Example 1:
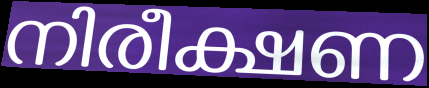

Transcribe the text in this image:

നിരീക്ഷണ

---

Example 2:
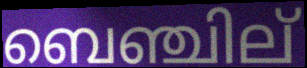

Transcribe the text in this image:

ബെഞ്ചില്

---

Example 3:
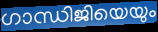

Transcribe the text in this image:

ഗാന്ധിജിയെയും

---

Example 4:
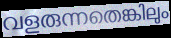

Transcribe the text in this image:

വളരുന്നതെങ്കിലും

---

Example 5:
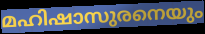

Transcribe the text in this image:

മഹിഷാസുരനെയും